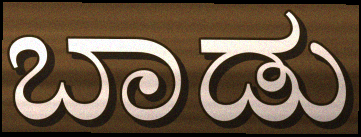
ಬಾಡು